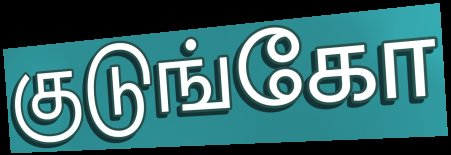
குடுங்கோ